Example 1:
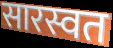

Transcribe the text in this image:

सारस्वत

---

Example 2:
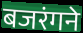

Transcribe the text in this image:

बजरंगने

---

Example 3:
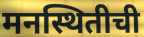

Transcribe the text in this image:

मनस्थितीची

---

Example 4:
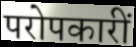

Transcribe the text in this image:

परोपकारीं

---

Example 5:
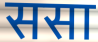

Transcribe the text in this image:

ससा